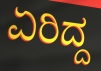
ಏರಿದ್ದ